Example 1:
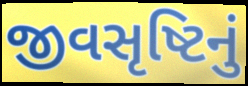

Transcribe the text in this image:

જીવસૃષ્ટિનું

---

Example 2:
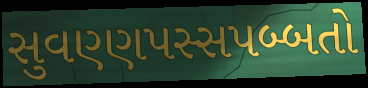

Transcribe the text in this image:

સુવણ્ણપસ્સપબ્બતો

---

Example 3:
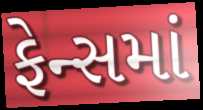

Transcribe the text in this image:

ફેન્સમાં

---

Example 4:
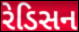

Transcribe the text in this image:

રેડિસન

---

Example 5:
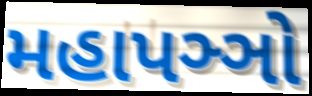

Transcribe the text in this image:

મહાપઞ્ઞો